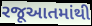
રજૂઆતમાંથી